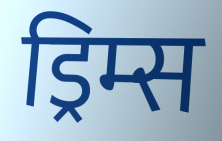
ड्रिम्स